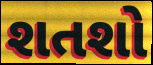
શતશો